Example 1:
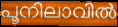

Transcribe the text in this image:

പൂനിലാവിൽ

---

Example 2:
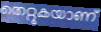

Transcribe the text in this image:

തെറ്റുകയാണ്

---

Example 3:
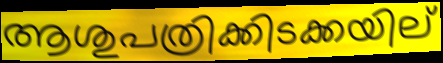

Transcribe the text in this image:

ആശുപത്രിക്കിടക്കയില്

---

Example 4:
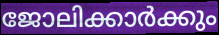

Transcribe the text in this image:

ജോലിക്കാർക്കും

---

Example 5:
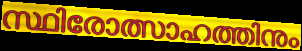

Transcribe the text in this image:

സ്ഥിരോത്സാഹത്തിനും